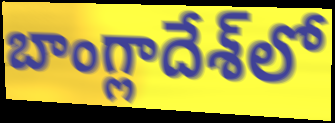
బాంగ్లాదేశ్‌లో